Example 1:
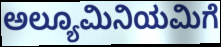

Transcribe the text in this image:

ಅಲ್ಯೂಮಿನಿಯಮಿಗೆ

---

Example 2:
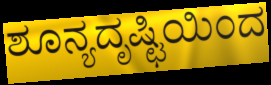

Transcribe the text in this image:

ಶೂನ್ಯದೃಷ್ಟಿಯಿಂದ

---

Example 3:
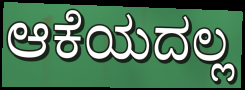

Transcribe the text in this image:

ಆಕೆಯದಲ್ಲ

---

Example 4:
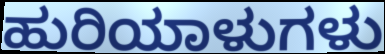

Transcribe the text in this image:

ಹುರಿಯಾಳುಗಳು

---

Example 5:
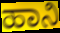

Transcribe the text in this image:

ಹಾನಿ